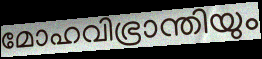
മോഹവിഭ്രാന്തിയും